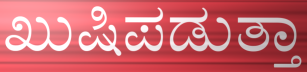
ಖುಷಿಪಡುತ್ತಾ